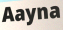
Aayna